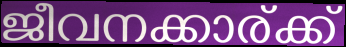
ജീവനക്കാര്ക്ക്